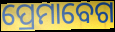
ପ୍ରେମାବେଗ